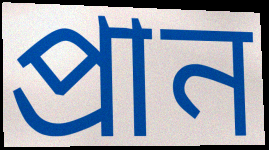
প্ৰান